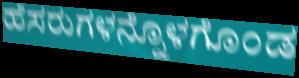
ಹೆಸರುಗಳನ್ನೊಳಗೊಂಡ